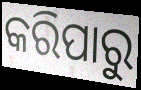
କରିପାରୁ